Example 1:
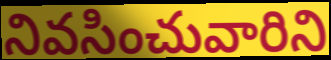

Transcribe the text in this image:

నివసించువారిని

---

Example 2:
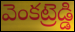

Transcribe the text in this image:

వెంకట్రెడ్డి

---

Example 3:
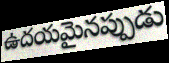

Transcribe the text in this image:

ఉదయమైనప్పుడు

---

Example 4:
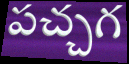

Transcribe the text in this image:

పచ్చగ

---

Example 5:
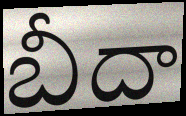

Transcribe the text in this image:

బీదా